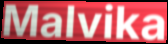
Malvika